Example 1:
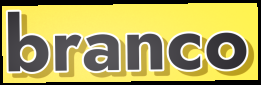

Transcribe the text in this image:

branco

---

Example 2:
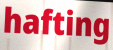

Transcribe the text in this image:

hafting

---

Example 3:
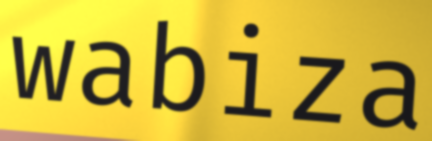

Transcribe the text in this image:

wabiza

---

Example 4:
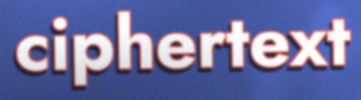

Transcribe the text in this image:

ciphertext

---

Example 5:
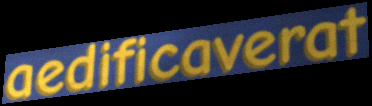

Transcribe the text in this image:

aedificaverat